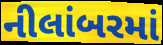
નીલાંબરમાં